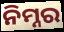
ନିମ୍ନର